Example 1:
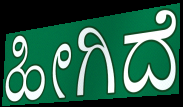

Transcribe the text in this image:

ಹೀಗಿದೆ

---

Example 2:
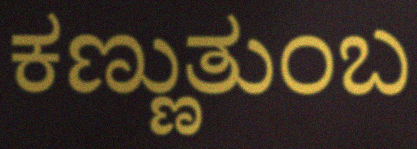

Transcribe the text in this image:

ಕಣ್ಣುತುಂಬ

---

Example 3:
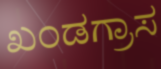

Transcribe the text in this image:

ಖಂಡಗ್ರಾಸ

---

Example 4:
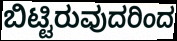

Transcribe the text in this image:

ಬಿಟ್ಟಿರುವುದರಿಂದ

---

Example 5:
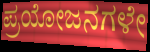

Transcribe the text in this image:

ಪ್ರಯೋಜನಗಳೇ